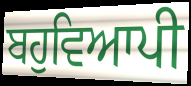
ਬਹੁਵਿਆਪੀ